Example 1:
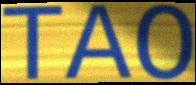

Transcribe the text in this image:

TAO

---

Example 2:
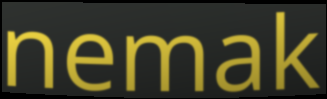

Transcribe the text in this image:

nemak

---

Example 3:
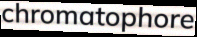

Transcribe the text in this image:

chromatophore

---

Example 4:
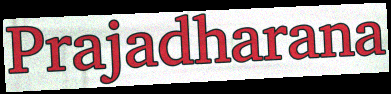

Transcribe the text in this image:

Prajadharana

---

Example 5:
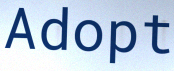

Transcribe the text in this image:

Adopt